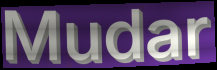
Mudar